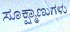
ಸೂಕ್ಷ್ಮಾಣುಗಳು